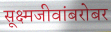
सूक्ष्मजीवांबरोबर